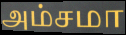
அம்சமா